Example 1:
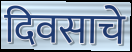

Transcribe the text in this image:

दिवसाचे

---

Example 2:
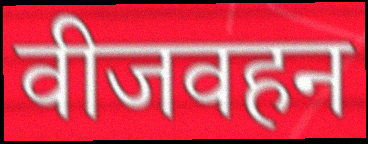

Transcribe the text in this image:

वीजवहन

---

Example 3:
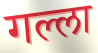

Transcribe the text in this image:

गल्ला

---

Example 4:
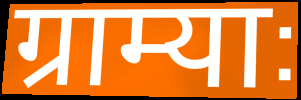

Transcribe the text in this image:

ग्राम्याः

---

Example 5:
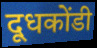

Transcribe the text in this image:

दूधकोंडी